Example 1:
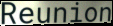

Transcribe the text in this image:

Reunion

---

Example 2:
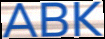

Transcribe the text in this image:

ABK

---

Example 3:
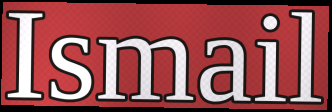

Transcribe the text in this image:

Ismail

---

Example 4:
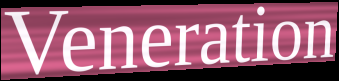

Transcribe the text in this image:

Veneration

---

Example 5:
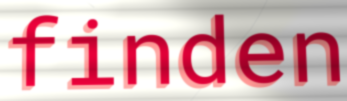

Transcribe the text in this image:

finden